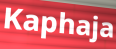
Kaphaja